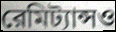
রেমিট্যান্সও